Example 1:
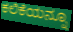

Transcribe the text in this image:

ಕಲಿಕೆಯನ್ನೂ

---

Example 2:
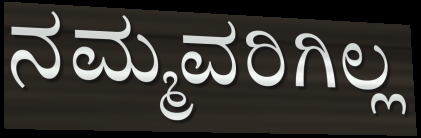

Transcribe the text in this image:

ನಮ್ಮವರಿಗಿಲ್ಲ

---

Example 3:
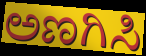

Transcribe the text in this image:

ಅಣಗಿಸಿ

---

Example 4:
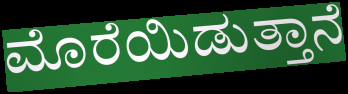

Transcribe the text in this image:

ಮೊರೆಯಿಡುತ್ತಾನೆ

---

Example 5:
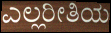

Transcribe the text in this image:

ಎಲ್ಲರೀತಿಯ